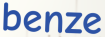
benze